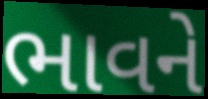
ભાવને